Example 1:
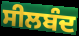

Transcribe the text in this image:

ਸੀਲਬੰਦ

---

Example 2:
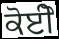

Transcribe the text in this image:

ਕੋਈੋ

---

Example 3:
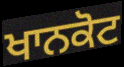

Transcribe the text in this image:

ਖਾਨਕੋਟ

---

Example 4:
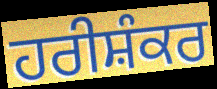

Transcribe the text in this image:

ਹਰੀਸ਼ੰਕਰ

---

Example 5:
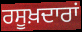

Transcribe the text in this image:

ਰਸੂਖ਼ਦਾਰਾਂ